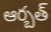
ఆర్బత్